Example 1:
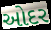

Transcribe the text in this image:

ઓદર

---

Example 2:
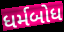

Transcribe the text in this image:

ધર્મબોધ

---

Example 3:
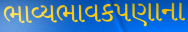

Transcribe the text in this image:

ભાવ્યભાવકપણાના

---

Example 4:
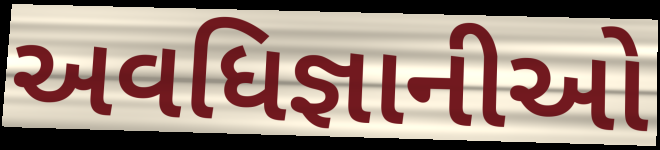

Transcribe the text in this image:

અવધિજ્ઞાનીઓ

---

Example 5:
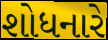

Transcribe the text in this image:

શોધનારે